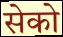
सेको